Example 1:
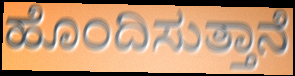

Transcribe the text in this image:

ಹೊಂದಿಸುತ್ತಾನೆ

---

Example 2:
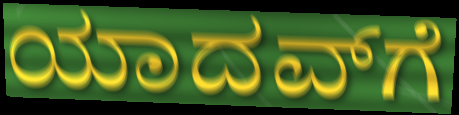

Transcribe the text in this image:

ಯಾದವ್‌ಗೆ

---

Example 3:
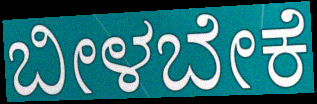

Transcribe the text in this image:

ಬೀಳಬೇಕೆ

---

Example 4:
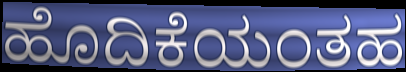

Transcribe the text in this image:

ಹೊದಿಕೆಯಂತಹ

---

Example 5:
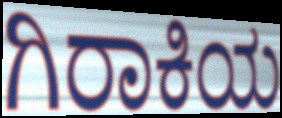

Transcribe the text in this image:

ಗಿರಾಕಿಯ